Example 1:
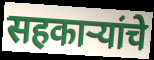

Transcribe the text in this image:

सहकाऱ्यांचे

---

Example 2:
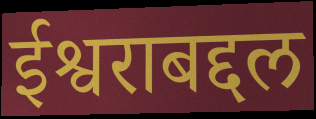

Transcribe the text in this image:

ईश्वराबद्दल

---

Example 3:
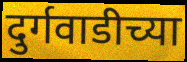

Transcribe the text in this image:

दुर्गवाडीच्या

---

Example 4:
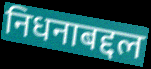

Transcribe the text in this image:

निधनाबद्दल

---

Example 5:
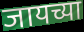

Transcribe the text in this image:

जायच्या